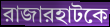
রাজারহাটকে